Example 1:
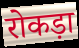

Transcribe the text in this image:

रोकड़ा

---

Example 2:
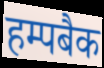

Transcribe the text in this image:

हम्पबैक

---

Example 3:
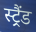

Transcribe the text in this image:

स्ट्रैंड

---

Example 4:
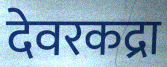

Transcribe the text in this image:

देवरकद्रा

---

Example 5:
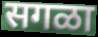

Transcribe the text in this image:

सगळा